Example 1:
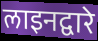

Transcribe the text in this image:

लाइनद्वारे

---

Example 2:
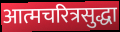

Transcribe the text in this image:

आत्मचरित्रसुद्धा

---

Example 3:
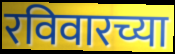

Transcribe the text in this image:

रविवारच्या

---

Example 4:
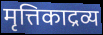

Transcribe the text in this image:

मृत्तिकाद्रव्य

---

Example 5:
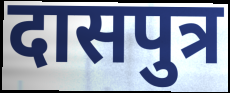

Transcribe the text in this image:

दासपुत्र